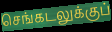
செங்கடலுக்குப்